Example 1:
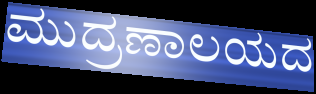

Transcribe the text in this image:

ಮುದ್ರಣಾಲಯದ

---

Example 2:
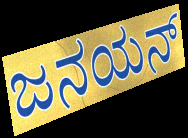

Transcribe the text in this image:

ಜನಯನ್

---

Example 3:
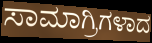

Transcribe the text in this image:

ಸಾಮಾಗ್ರಿಗಳಾದ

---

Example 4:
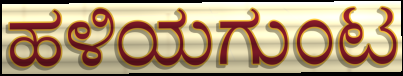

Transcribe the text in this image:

ಹಳಿಯಗುಂಟ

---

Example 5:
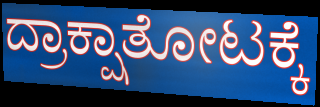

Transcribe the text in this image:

ದ್ರಾಕ್ಷಾತೋಟಕ್ಕೆ